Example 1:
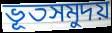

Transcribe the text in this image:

ভূতসমুদয়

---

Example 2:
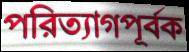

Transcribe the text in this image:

পরিত্যাগপূর্বক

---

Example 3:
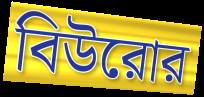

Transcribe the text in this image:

বিউরোর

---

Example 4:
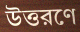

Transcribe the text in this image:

উত্তরণে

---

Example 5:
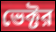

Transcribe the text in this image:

ভেক্টর